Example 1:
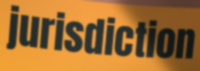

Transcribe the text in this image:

jurisdiction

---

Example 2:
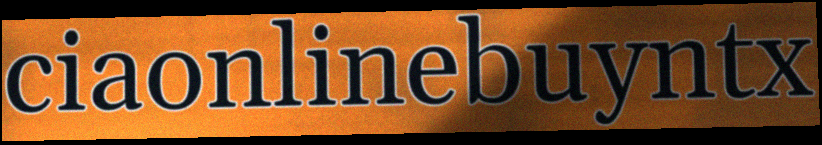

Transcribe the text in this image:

ciaonlinebuyntx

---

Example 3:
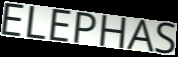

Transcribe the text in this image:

ELEPHAS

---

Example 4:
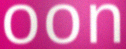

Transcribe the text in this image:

oon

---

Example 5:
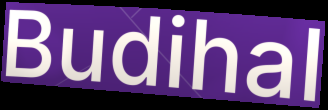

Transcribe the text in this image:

Budihal